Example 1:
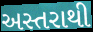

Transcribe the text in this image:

અસ્તરાથી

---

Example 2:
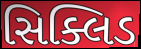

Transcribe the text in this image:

સિક્લિડ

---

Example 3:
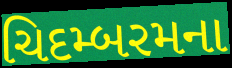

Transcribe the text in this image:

ચિદમ્બરમના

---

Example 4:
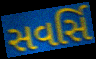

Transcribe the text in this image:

સવર્સિ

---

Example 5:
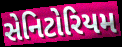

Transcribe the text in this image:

સેનિટોરિયમ